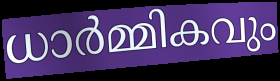
ധാർമ്മികവും